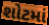
શોટમાં